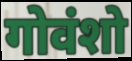
गोवंशो